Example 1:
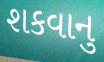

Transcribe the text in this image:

શકવાનુ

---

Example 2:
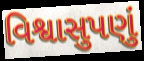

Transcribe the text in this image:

વિશ્વાસુપણું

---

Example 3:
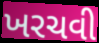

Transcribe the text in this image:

ખરચવી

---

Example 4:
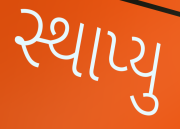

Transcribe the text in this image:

સ્થાપ્યુ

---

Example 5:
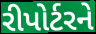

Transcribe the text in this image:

રીપોર્ટરને